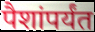
पैशांपर्यंत